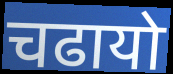
चढायो